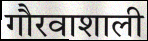
गौरवाशाली